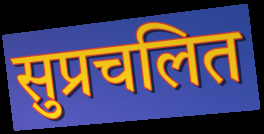
सुप्रचलित